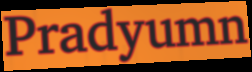
Pradyumn